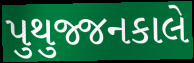
પુથુજ્જનકાલે